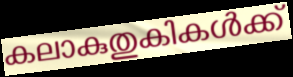
കലാകുതുകികൾക്ക്